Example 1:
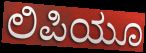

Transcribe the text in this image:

ಲಿಪಿಯೂ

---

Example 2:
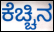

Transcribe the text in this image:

ಕೆಚ್ಚಿನ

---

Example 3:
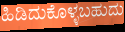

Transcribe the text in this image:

ಹಿಡಿದುಕೊಳ್ಳಬಹುದು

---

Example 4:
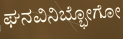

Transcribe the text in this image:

ಘನವಿನಿಬ್ಭೋಗೋ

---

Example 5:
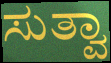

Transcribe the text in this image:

ಸುತ್ವಾ